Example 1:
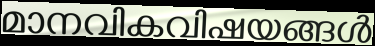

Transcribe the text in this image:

മാനവികവിഷയങ്ങൾ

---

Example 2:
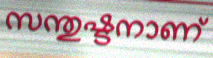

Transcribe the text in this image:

സന്തുഷ്ടനാണ്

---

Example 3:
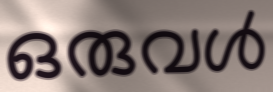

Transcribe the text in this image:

ഒരുവൾ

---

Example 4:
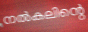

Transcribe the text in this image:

നൽകലിന്റെ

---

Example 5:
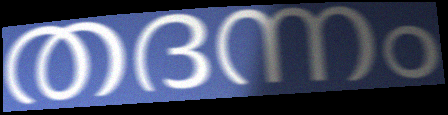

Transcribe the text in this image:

തദന്നം